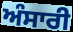
ਅੰਸਾਰੀ